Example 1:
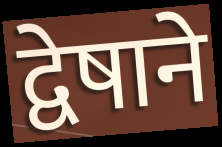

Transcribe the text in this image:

द्वेषाने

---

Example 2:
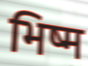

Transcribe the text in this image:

भिष्म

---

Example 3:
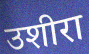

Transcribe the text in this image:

उशीरा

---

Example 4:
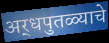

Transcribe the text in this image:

अर्धपुतळ्याचे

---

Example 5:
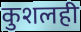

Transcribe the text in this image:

कुशलही